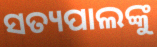
ସତ୍ୟପାଲଙ୍କୁ